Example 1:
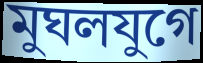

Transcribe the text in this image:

মুঘলযুগে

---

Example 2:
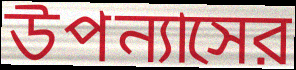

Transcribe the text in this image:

উপন্যাসের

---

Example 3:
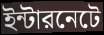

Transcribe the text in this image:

ইন্টারনেটে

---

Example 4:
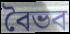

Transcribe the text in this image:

বৈভব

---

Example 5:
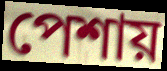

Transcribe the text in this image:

পেশায়